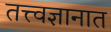
तत्त्वज्ञानात